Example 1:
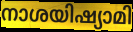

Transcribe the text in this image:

നാശയിഷ്യാമി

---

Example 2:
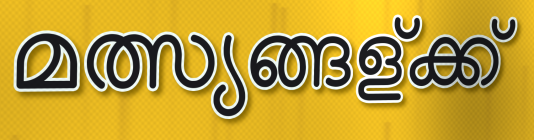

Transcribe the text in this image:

മത്സ്യങ്ങള്ക്ക്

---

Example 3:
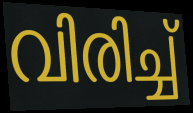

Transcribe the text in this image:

വിരിച്ച്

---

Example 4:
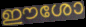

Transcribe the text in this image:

ഈശോ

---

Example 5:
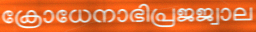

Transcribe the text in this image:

ക്രോധേനാഭിപ്രജജ്വാല